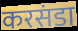
करसंडा